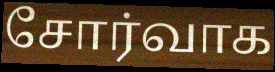
சோர்வாக